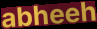
abheeh